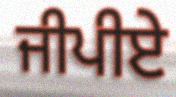
ਜੀਪੀਏ